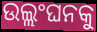
ଉଲ୍ଲଂଘନକୁ